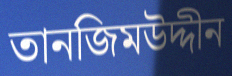
তানজিমউদ্দীন